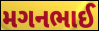
મગનભાઈ